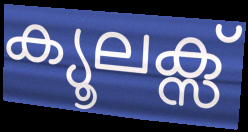
ക്യൂലക്സ്